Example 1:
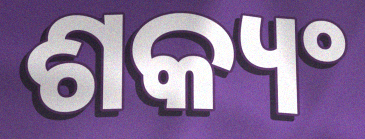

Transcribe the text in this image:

ଶକ୍ୟଂ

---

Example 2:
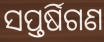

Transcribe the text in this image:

ସପ୍ତର୍ଷିଗଣ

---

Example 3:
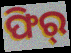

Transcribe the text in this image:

ଫିର୍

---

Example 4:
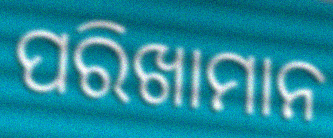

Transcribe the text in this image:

ପରିଖାମାନ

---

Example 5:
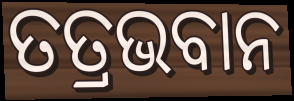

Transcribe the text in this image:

ତତ୍ରଭବାନ